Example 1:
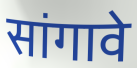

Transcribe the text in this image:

सांगावे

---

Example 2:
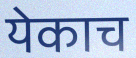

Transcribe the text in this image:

येकाच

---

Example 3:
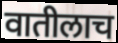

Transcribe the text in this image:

वातीलाच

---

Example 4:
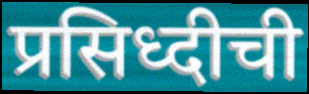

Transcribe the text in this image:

प्रसिध्दीची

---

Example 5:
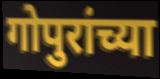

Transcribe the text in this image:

गोपुरांच्या